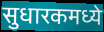
सुधारकमध्ये